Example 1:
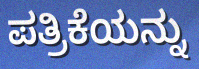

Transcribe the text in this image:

ಪತ್ರಿಕೆಯನ್ನು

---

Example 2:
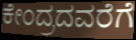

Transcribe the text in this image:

ಕೇಂದ್ರದವರೆಗೆ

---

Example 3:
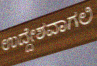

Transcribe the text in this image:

ಉದ್ದೇಶವಾಗಲಿ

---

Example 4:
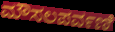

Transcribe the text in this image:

ಮೌಸಲಪರ್ವಣಿ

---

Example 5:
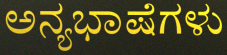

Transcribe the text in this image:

ಅನ್ಯಭಾಷೆಗಳು